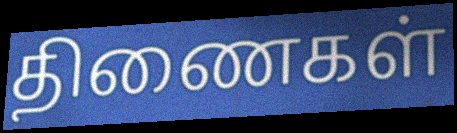
திணைகள்